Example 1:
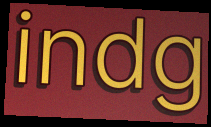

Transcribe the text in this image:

indg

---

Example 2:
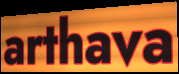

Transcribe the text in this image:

arthava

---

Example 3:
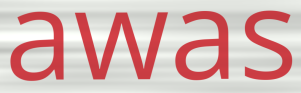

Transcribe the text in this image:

awas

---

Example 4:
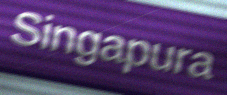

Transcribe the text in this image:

Singapura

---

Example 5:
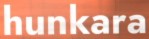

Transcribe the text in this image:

hunkara